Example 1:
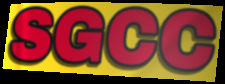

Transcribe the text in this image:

SGCC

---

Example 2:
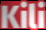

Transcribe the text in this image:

Kili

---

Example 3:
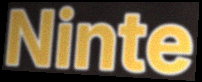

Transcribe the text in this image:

Ninte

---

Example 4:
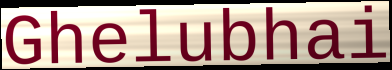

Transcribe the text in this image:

Ghelubhai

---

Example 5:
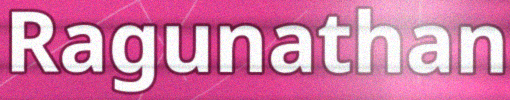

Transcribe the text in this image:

Ragunathan